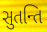
સુતન્તિ